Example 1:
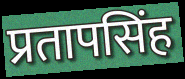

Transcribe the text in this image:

प्रतापसिंह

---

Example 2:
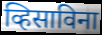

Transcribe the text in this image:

व्हिसाविना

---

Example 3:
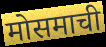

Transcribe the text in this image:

मोसमाची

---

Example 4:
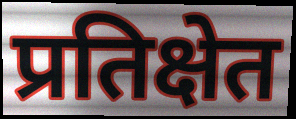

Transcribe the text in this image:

प्रतिक्षेत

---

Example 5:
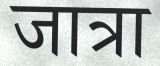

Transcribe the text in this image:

जात्रा